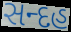
સન્દહ